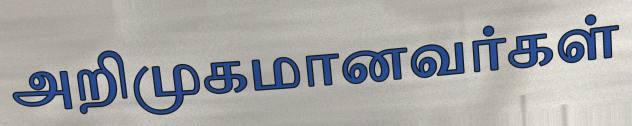
அறிமுகமானவர்கள்